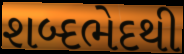
શબ્દભેદથી